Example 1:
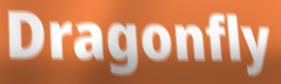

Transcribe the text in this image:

Dragonfly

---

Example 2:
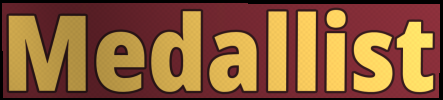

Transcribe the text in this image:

Medallist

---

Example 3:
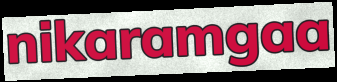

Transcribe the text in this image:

nikaramgaa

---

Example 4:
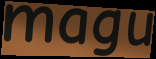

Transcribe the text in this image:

magu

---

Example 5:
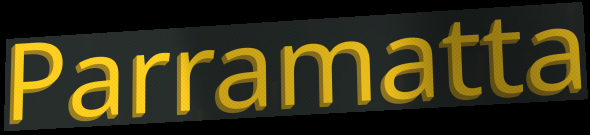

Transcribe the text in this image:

Parramatta